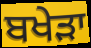
ਬਖੇੜਾ